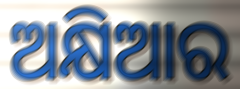
ଅକ୍ଷିଆର